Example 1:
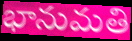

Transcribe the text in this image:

భానుమతి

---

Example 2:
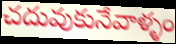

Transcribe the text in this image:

చదువుకునేవాళ్ళం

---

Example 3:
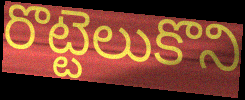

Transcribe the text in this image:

రొట్టెలుకొని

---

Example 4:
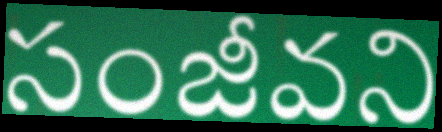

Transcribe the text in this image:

సంజీవని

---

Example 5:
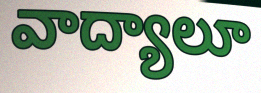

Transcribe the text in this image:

వాద్యాలూ